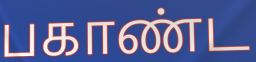
பகாண்ட